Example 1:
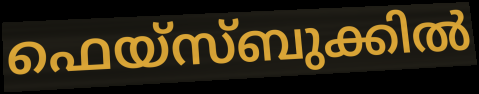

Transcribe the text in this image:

ഫെയ്സ്ബുക്കിൽ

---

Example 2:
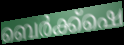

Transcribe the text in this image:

ബെർക്ക്ഷെ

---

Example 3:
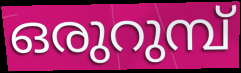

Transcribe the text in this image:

ഒരുറുമ്പ്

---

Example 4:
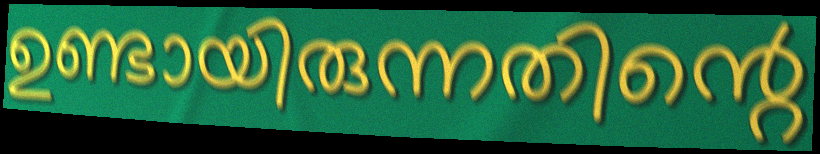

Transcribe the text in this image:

ഉണ്ടായിരുന്നതിന്റെ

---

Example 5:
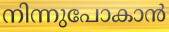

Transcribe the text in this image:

നിന്നുപോകാൻ